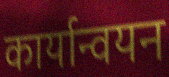
कार्यान्‍वयन